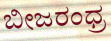
ಬೀಜರಂಧ್ರ